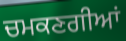
ਚਮਕਣਗੀਆਂ